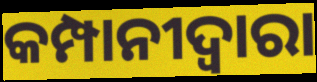
କମ୍ପାନୀଦ୍ୱାରା